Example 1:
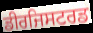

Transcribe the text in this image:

ਡੀਰਜਿਸਟਰਡ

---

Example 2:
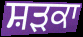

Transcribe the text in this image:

ਸ਼ੜਕਾ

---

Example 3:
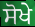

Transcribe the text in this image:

ਸੋਖੇ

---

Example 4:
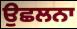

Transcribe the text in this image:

ਉਛਲਨਾ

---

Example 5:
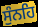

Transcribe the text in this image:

ਸੁੰਨਹਿ